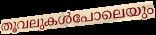
തൂവലുകൾപോലെയും